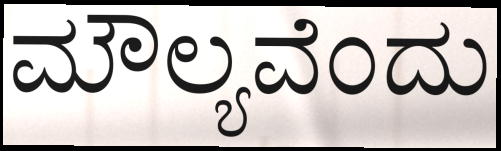
ಮೌಲ್ಯವೆಂದು